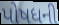
પોષધની